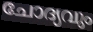
ചോദ്യവും